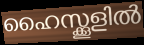
ഹൈസ്ക്കൂളിൽ